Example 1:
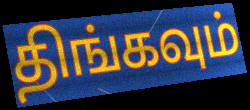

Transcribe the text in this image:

திங்கவும்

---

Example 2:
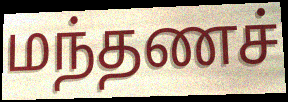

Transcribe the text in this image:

மந்தணச்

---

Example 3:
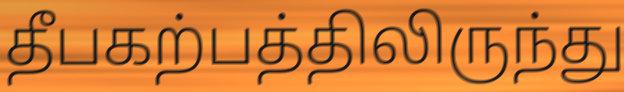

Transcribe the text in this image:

தீபகற்பத்திலிருந்து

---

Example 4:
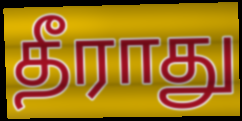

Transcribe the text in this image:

தீராது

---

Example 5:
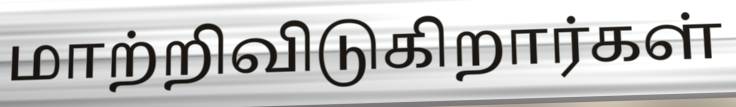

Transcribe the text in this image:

மாற்றிவிடுகிறார்கள்